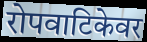
रोपवाटिकेवर